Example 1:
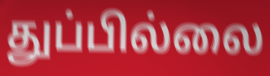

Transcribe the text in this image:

துப்பில்லை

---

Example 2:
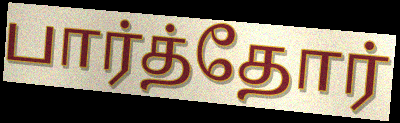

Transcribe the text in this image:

பார்த்தோர்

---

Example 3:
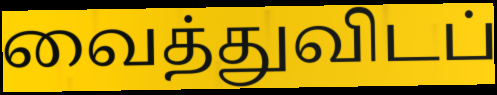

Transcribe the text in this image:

வைத்துவிடப்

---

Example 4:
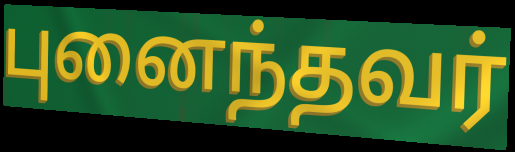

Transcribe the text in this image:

புனைந்தவர்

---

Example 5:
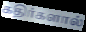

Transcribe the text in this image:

கதிர்களால்